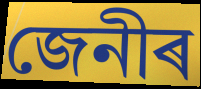
জেনীৰ